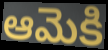
ఆమెకి